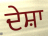
ਦੇਸ਼ਾ